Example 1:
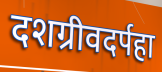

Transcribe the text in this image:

दशग्रीवदर्पहा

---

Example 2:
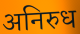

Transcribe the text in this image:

अनिरुध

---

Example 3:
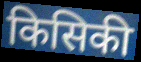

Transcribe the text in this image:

किसिकी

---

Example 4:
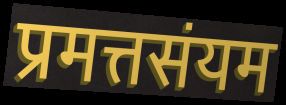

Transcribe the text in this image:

प्रमत्तसंयम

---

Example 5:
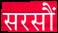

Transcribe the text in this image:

सरसौं